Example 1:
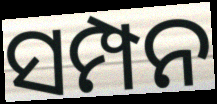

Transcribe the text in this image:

ସମ୍ପନ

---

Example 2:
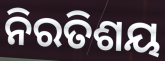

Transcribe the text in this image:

ନିରତିଶୟ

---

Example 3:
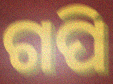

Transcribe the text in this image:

ଗପି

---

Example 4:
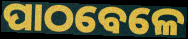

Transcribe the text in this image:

ପାଠବେଳେ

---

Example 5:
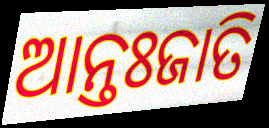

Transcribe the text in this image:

ଆନ୍ତଃଜାତି